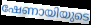
ഷേണായിയുടെ